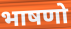
भाषणो